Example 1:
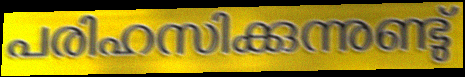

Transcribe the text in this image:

പരിഹസിക്കുന്നുണ്ടു്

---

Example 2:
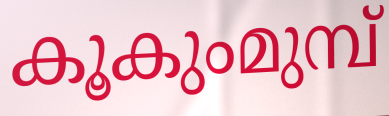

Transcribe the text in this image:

കൂകുംമുമ്പ്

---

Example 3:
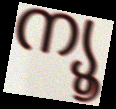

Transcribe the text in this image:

ന്യൂ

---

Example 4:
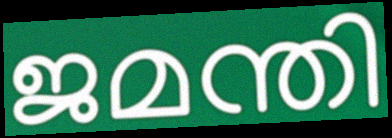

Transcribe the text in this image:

ജമന്തി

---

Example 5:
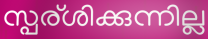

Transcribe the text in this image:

സ്പര്ശിക്കുന്നില്ല